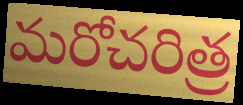
మరోచరిత్ర